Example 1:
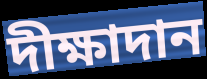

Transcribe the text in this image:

দীক্ষাদান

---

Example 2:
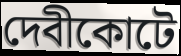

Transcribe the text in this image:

দেবীকোটে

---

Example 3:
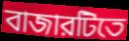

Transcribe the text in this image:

বাজারটিতে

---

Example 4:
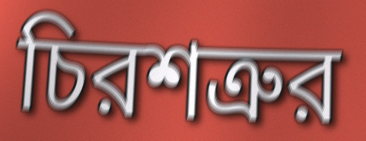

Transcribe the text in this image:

চিরশত্রুর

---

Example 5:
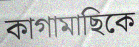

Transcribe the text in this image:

কাগামাছিকে